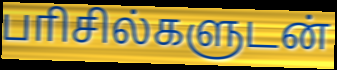
பரிசில்களுடன்